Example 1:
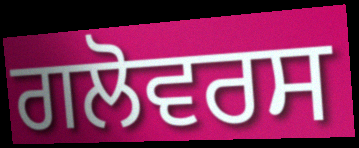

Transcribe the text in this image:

ਗਲੋਵਰਸ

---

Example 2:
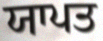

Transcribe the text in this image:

ਯਾਪਤ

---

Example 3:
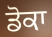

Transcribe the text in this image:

ਡੋਕਾ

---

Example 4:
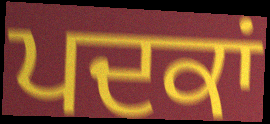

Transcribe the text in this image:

ਪਦਕਾਂ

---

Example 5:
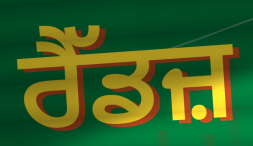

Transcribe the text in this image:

ਰੈੱਡਜ਼